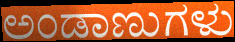
ಅಂಡಾಣುಗಳು